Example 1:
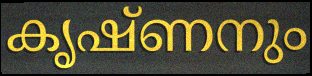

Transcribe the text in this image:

കൃഷ്ണനും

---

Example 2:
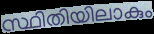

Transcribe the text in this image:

സ്ഥിതിയിലാകും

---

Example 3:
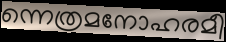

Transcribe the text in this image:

ന്നെത്രമനോഹരമീ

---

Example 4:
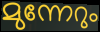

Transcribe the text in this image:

മുന്നേറും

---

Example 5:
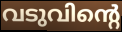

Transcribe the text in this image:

വടുവിന്റെ